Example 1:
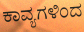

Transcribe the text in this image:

ಕಾವ್ಯಗಳಿಂದ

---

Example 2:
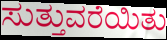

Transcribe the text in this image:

ಸುತ್ತುವರೆಯಿತು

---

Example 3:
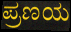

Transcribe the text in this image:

ಪ್ರಣಯ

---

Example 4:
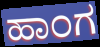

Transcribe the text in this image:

ಹಾಂಗ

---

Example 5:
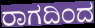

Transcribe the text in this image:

ರಾಗದಿಂದ